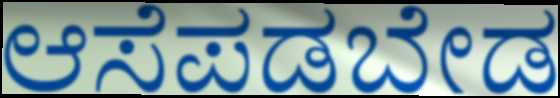
ಆಸೆಪಡಬೇಡ